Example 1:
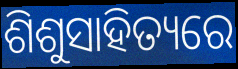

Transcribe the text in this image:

ଶିଶୁସାହିତ୍ୟରେ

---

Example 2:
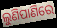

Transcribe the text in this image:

ଲୁଣିପାଣିରେ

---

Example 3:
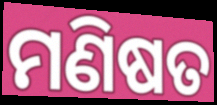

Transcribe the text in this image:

ମଣିଷତ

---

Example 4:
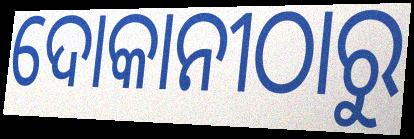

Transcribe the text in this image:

ଦୋକାନୀଠାରୁ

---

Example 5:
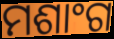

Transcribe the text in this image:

ମଶାଂଗ